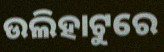
ଉଲିହାଟୁରେ